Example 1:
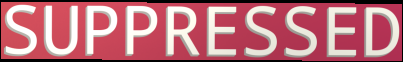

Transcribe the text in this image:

SUPPRESSED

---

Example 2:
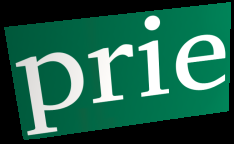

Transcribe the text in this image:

prie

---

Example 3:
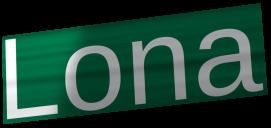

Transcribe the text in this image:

Lona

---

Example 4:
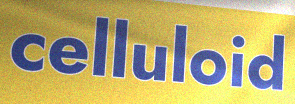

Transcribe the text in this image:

celluloid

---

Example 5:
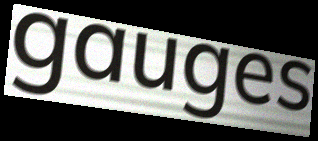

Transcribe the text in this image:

gauges